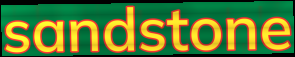
sandstone